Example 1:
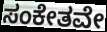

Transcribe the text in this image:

ಸಂಕೇತವೇ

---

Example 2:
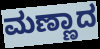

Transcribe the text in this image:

ಮಣ್ಣಾದ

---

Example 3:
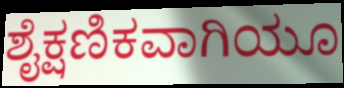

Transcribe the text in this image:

ಶೈಕ್ಷಣಿಕವಾಗಿಯೂ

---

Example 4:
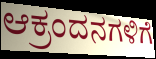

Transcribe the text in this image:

ಆಕ್ರಂದನಗಳಿಗೆ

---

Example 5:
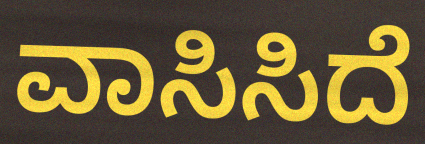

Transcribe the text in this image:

ವಾಸಿಸಿದೆ